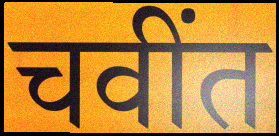
चवींत